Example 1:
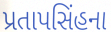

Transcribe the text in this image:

પ્રતાપસિંહના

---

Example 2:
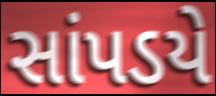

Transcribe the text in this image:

સાંપડયે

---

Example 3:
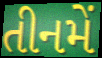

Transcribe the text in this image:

તીનમેં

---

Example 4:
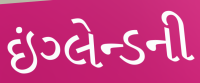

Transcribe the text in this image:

ઇંગ્લેન્ડની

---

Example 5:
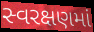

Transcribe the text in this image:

સ્વરક્ષણમાં